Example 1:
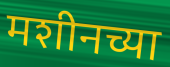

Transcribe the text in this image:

मशीनच्या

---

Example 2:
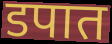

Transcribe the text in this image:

डपात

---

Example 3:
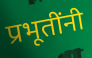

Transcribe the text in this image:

प्रभूतींनी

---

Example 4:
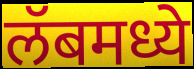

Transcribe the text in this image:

लॅबमध्ये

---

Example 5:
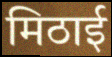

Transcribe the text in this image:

मिठाई